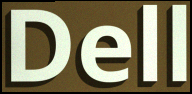
Dell